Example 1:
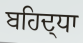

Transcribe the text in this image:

ਬਹਿਦ੍ਧਾ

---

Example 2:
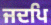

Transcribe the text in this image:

ਜਦਪਿ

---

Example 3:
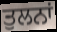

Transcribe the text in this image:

ਤੁਲਨਾਂ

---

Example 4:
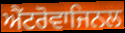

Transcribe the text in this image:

ਐਂਟਰੋਵਾਜਿਨਲ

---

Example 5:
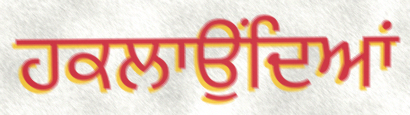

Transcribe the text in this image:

ਹਕਲਾਉਂਦਿਆਂ